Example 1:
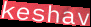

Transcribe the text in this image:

keshav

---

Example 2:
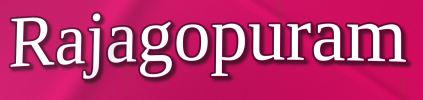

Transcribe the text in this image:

Rajagopuram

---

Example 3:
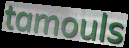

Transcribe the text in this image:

tamouls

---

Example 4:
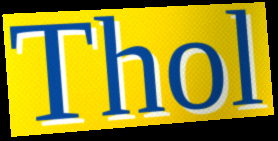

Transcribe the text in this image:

Thol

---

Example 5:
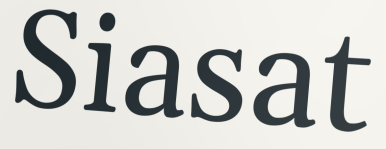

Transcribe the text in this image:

Siasat